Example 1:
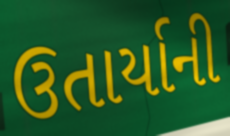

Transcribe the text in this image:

ઉતાર્યાની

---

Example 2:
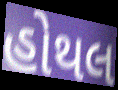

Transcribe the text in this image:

હોથલ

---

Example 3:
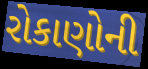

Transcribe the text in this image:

રોકાણોની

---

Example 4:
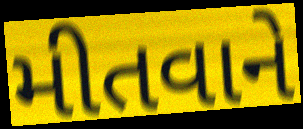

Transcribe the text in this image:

મીતવાને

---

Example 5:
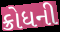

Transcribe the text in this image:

ક્રોધની